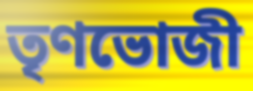
তৃণভোজী